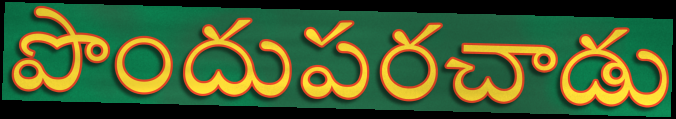
పొందుపరచాడు